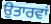
ਉਤਾਰਵਾਂ